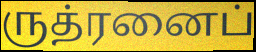
ருத்ரனைப்